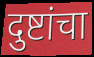
दुष्टांचा